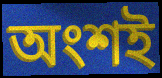
অংশই